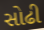
સોઢી